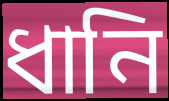
ধানি